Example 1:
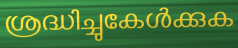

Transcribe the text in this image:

ശ്രദ്ധിച്ചുകേൾക്കുക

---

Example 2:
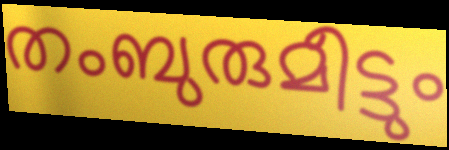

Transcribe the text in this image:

തംബുരുമീട്ടും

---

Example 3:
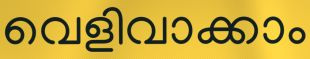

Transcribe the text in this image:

വെളിവാക്കാം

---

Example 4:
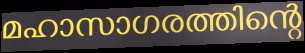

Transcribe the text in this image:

മഹാസാഗരത്തിന്റെ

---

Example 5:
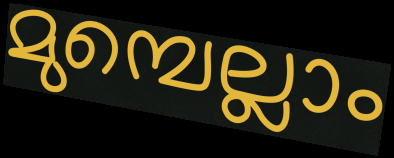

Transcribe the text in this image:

മുമ്പെല്ലാം